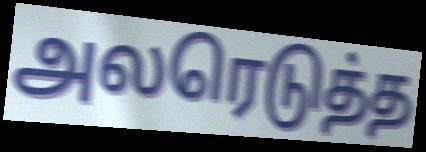
அலரெடுத்த